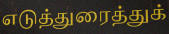
எடுத்துரைத்துக்